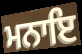
ਮਨਾਇ